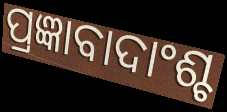
ପ୍ରଜ୍ଞାବାଦାଂଶ୍ଚ